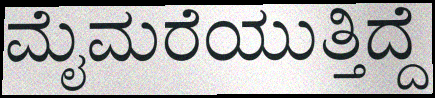
ಮೈಮರೆಯುತ್ತಿದ್ದೆ